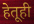
हेतूही